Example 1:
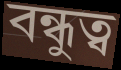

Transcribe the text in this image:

বন্ধুত্ব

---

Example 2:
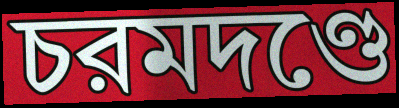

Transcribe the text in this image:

চরমদণ্ডে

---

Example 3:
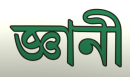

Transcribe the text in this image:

জ্ঞানী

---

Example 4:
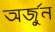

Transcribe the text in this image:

অর্জুন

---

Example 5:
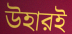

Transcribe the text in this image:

উহারই